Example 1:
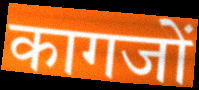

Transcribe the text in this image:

कागजों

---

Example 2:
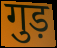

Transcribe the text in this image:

गुड़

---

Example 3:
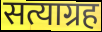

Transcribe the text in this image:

सत्याग्रह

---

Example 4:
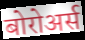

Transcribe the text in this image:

बोरोअर्स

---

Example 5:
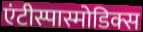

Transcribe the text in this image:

एंटीस्पास्मोडिक्स